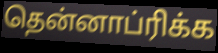
தென்னாப்ரிக்க